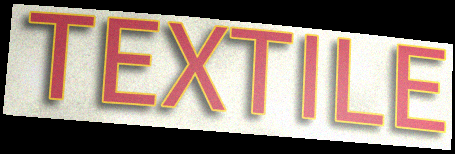
TEXTILE